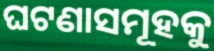
ଘଟଣାସମୂହକୁ